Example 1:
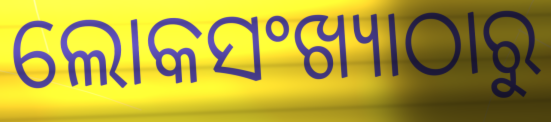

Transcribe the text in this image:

ଲୋକସଂଖ୍ୟାଠାରୁ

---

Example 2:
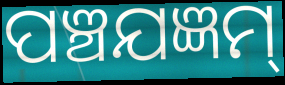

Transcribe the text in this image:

ପଞ୍ଚଯଜ୍ଞମ୍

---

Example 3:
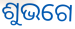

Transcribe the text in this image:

ଶୁଭଗେ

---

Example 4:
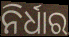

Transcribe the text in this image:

ନିର୍ଧାର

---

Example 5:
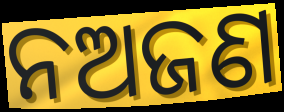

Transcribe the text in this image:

ନଅଜଣ